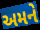
અમને